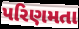
પરિણમતા